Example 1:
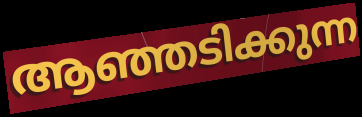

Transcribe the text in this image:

ആഞ്ഞടിക്കുന്ന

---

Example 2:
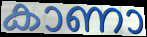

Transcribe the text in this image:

കാണാ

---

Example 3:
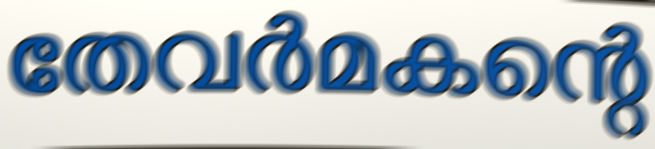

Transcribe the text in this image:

തേവർമകന്റെ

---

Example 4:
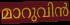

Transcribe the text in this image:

മാറുവിൻ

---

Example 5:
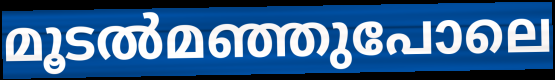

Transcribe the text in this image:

മൂടൽമഞ്ഞുപോലെ